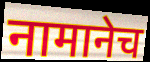
नामानेच